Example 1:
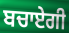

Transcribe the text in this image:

ਬਚਾਏਗੀ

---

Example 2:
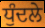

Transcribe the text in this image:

ਧੁੰਦਲੇ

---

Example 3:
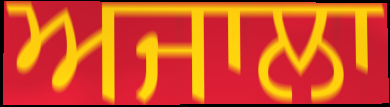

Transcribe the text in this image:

ਅਜਾਲਾ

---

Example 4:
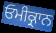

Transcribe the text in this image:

ਓਮੀਕ੍ਰਾਨ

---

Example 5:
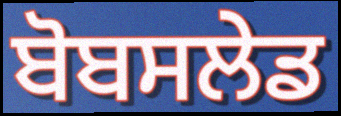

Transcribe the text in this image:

ਬੋਬਸਲੇਡ